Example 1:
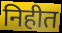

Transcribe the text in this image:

निहीत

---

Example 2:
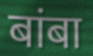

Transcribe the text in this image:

बांबा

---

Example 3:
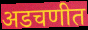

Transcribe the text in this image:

अडचणीत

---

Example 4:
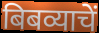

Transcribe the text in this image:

बिबव्याचें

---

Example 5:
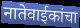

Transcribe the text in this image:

नातेवाईकांचा